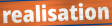
realisation